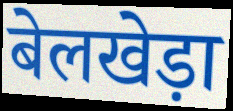
बेलखेड़ा